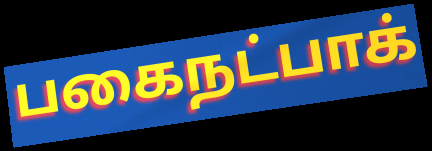
பகைநட்பாக்